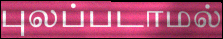
புலப்படாமல்